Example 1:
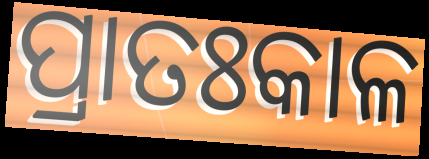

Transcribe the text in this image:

ପ୍ରାତଃକାଳ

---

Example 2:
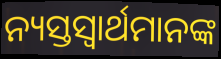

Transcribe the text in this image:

ନ୍ୟସ୍ତସ୍ଵାର୍ଥମାନଙ୍କ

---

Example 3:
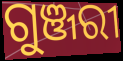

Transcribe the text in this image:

ଗୁଞ୍ଜରୀ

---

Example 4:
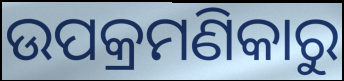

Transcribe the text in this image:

ଉପକ୍ରମଣିକାରୁ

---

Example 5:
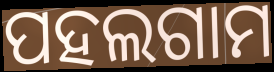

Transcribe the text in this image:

ପହଲଗାମ